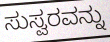
ಸುಸ್ವರವನ್ನು